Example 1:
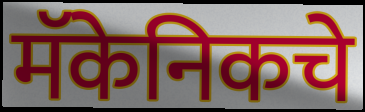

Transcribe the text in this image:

मॅकेनिकचे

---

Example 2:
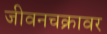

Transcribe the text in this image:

जीवनचक्रावर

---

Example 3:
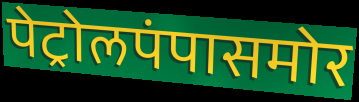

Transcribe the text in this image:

पेट्रोलपंपासमोर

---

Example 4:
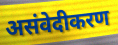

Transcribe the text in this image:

असंवेदीकरण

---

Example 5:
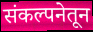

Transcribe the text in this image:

संकल्पनेतून